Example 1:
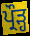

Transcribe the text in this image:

ਪ੍ਰੌੜ੍ਹ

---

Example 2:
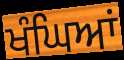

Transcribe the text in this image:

ਖੰਘਿਆਂ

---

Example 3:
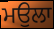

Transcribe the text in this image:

ਮਉਲਾ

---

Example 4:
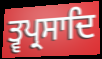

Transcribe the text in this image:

ਤ੍ਵਪ੍ਰਸਾਦਿ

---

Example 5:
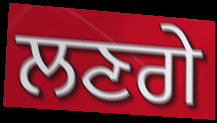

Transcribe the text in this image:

ਲਣਗੇ